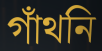
গাঁথনি